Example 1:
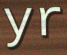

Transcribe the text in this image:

yr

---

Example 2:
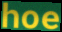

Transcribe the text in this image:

hoe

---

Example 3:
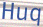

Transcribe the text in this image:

Huq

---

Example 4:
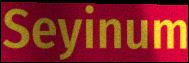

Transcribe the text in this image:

Seyinum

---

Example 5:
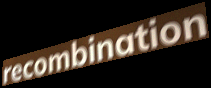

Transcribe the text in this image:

recombination